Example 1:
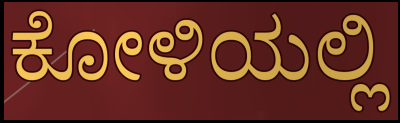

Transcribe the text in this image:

ಕೋಳಿಯಲ್ಲಿ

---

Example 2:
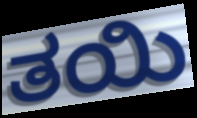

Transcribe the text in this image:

ತಯಿ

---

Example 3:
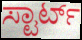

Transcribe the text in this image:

ಸ್ಟಾರ್ಟ್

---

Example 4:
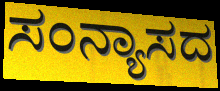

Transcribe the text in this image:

ಸಂನ್ಯಾಸದ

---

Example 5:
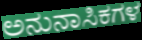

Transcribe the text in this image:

ಅನುನಾಸಿಕಗಳ